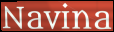
Navina